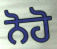
ਨੋਹੋ